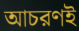
আচরণই